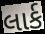
લાર્ક